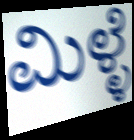
ಮಿಳ್ಳೆ